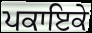
ਪਕਾਇਕੇ